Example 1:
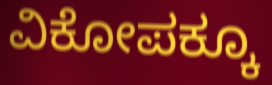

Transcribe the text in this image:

ವಿಕೋಪಕ್ಕೂ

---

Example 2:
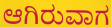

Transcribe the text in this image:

ಆಗಿರುವಾಗ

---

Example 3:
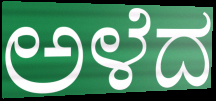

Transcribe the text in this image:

ಅಳೆದ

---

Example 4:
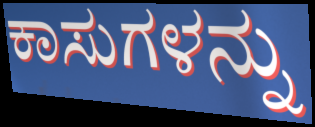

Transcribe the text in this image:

ಕಾಸುಗಳನ್ನು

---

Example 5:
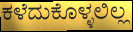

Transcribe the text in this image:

ಕಳೆದುಕೊಳ್ಳಲಿಲ್ಲ